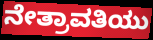
ನೇತ್ರಾವತಿಯು